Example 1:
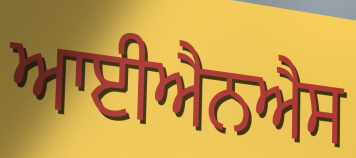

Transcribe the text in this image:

ਆਈਐਨਐਸ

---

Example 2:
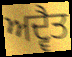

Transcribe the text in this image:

ਅਦ੍ਵੈਤ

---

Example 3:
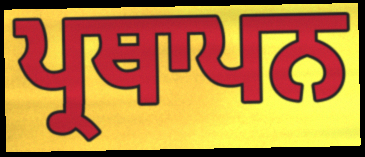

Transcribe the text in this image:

ਪ੍ਰਥਾਪਨ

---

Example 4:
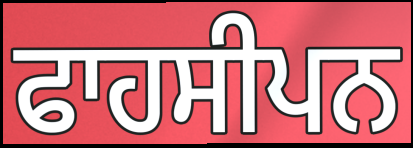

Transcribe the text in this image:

ਫਾਹਸੀਪਨ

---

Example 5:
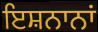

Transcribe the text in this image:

ਇਸ਼ਨਾਨਾਂ